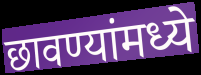
छावण्यांमध्ये